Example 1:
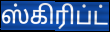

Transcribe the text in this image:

ஸ்கிரிப்ட்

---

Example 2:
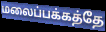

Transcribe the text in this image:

மலைப்பக்கத்தே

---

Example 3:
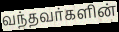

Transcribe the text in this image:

வந்தவர்களின்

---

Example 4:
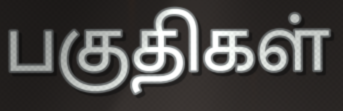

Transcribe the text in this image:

பகுதிகள்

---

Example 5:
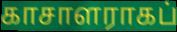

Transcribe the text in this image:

காசாளராகப்